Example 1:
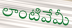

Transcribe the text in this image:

లాంటివేమీ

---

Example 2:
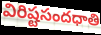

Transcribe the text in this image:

విరిష్టసందధాతి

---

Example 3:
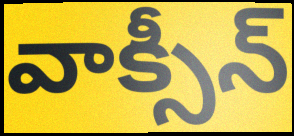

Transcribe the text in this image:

వాక్సీన్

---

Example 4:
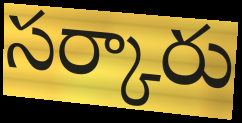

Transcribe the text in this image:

సర్కారు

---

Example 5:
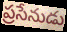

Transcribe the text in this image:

ప్రసేనుడు